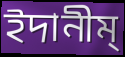
ইদানীম্